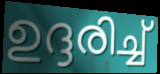
ഉദ്ദരിച്ച്